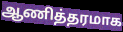
ஆணித்தரமாக